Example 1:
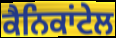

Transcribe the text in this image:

ਕੈਨਿਕਾਂਟੇਲ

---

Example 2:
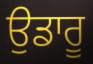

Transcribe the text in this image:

ਉਡਾਰੂ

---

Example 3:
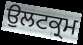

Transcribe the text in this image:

ਉਲਟਕ੍ਰਮ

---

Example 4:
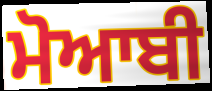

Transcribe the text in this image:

ਮੋਆਬੀ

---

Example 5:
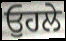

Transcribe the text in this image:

ਓੁਹਲੇ